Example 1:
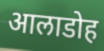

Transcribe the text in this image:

आलाडोह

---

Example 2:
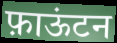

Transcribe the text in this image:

फ़ाऊंटन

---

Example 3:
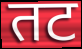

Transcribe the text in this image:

तट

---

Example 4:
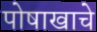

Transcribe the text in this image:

पोषाखाचे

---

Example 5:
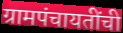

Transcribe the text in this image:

ग्रामपंचायतींची